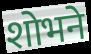
शोभने